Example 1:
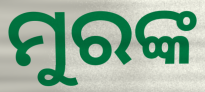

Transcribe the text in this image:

ମୁରଙ୍କ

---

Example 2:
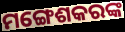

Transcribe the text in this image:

ମଙ୍ଗେଶକରଙ୍କ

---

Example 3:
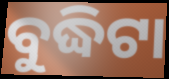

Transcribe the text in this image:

ବୁଦ୍ଧିଟା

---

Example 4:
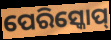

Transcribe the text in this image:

ପେରିସ୍କୋପ୍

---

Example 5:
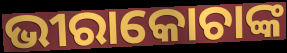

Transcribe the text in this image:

ଭୀରାକୋଚାଙ୍କ